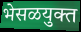
भेसळयुक्त